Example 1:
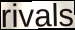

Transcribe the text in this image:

rivals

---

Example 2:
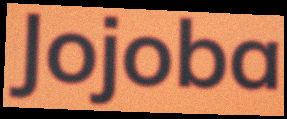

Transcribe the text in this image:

Jojoba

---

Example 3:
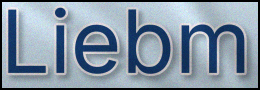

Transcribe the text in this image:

Liebm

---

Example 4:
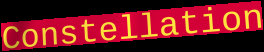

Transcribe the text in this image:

Constellation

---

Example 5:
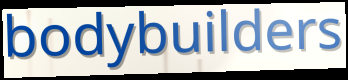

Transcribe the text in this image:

bodybuilders